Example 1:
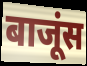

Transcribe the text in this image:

बाजूंस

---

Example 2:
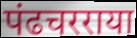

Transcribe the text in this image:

पंढचरराया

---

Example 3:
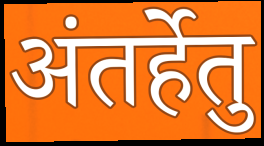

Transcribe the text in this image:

अंतर्हेतु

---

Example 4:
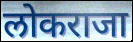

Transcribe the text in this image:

लोकराजा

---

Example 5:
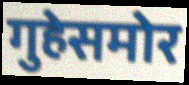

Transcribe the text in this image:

गुहेसमोर